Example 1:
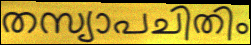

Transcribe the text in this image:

തസ്യാപചിതിം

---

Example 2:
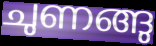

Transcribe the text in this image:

ചുണങ്ങു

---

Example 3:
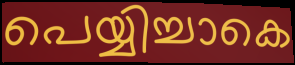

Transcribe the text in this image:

പെയ്യിച്ചാകെ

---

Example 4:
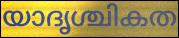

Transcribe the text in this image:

യാദൃശ്ചികത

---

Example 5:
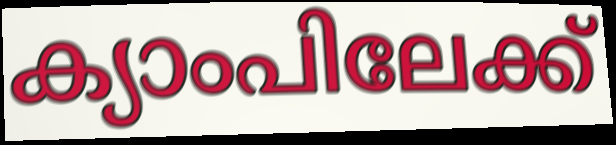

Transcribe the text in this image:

ക്യാംപിലേക്ക്